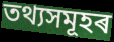
তথ্যসমূহৰ